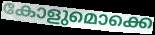
കോളുമൊക്കെ